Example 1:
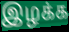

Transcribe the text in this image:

இழக்க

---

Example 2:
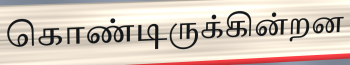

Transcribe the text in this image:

கொண்டிருக்கின்றன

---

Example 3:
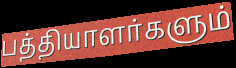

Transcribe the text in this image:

பத்தியாளர்களும்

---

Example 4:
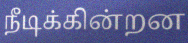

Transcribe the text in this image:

நீடிக்கின்றன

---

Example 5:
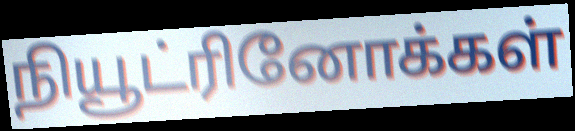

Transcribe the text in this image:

நியூட்ரினோக்கள்